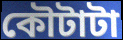
কৌটাটা